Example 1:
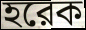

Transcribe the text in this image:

হরেক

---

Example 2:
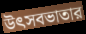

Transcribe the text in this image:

উৎসবভাতার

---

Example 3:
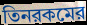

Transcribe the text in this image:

তিনরকমের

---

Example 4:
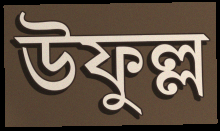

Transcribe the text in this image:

উফুল্ল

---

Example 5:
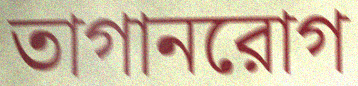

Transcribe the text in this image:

তাগানরোগ